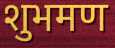
शुभमण